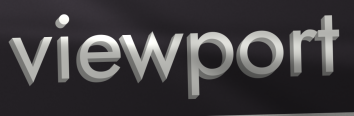
viewport